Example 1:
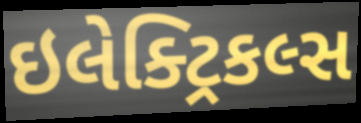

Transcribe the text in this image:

ઇલેક્ટ્રિકલ્સ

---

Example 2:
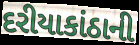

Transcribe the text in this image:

દરીયાકાંઠાની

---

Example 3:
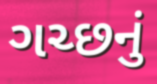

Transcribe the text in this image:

ગચ્છનું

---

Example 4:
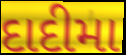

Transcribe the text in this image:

દાદીમા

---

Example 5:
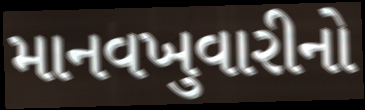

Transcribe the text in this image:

માનવખુવારીનો